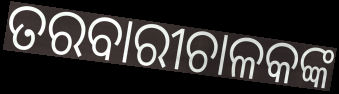
ତରବାରୀଚାଳକଙ୍କ